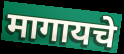
मागायचे